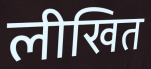
लीखित